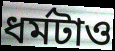
ধর্মটাও